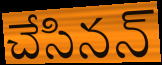
చేసినన్